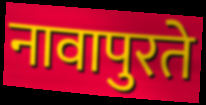
नावापुरते